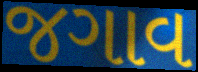
જગાવ